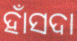
ହାଁସଦା